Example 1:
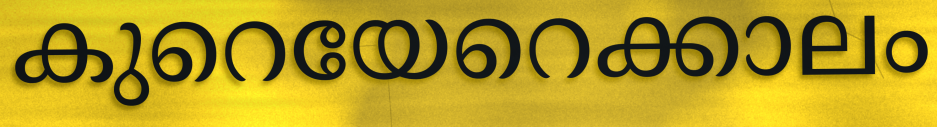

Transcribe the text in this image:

കുറെയേറെക്കാലം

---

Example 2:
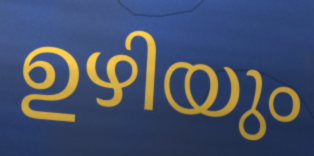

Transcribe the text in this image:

ഉഴിയും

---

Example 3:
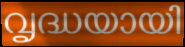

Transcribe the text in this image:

വൃദ്ധയായി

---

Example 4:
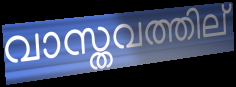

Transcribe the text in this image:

വാസ്തവത്തില്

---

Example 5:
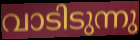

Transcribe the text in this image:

വാടിടുന്നു